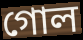
গোল